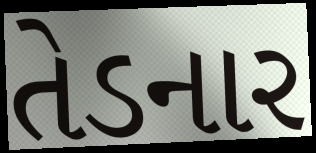
તેડનાર